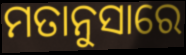
ମତାନୁସାରେ